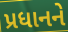
પ્રધાનને